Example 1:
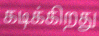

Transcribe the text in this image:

கடிக்கிறது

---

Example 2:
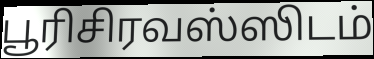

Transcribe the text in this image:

பூரிசிரவஸ்ஸிடம்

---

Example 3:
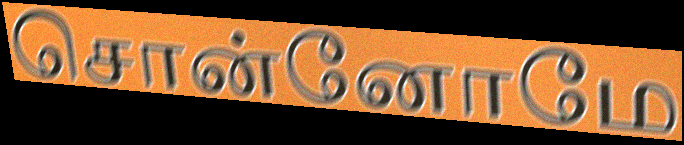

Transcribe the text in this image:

சொன்னோமே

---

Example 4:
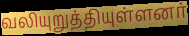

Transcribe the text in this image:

வலியுறுத்தியுள்ளனர்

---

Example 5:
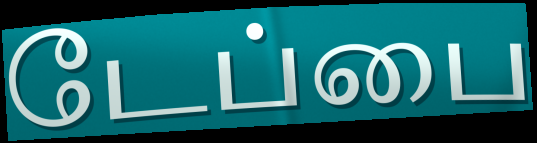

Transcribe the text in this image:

டேப்பை